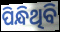
ପିନ୍ଧିଥିବି